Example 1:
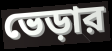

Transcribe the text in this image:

ভেড়ার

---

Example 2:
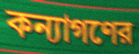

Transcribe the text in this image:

কন্যাগণের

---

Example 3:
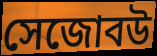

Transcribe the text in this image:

সেজোবউ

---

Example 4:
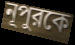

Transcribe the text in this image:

নূপুরকে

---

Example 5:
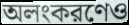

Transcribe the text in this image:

অলংকরণেও